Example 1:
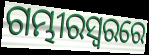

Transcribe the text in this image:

ଗମ୍ଭୀରସ୍ୱରରେ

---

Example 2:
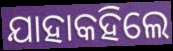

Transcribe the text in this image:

ଯାହାକହିଲେ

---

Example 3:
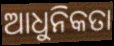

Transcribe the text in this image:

ଆଧୁନିକତା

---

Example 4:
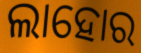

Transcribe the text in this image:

ଲାହୋର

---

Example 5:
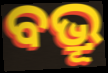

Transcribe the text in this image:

ବଭ୍ରୂ